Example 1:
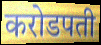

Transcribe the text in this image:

करोडपती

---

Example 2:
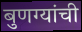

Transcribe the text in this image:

बुणग्यांची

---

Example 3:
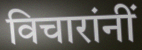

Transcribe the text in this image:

विचारांनीं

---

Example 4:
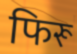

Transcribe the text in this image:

फिरू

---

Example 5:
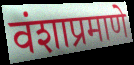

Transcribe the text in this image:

वंशाप्रमाणे